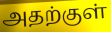
அதற்குள்